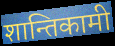
शान्तिकामी